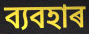
ব্যবহাৰ